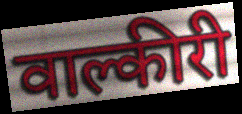
वाल्कीरी